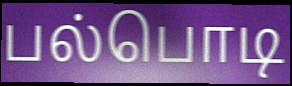
பல்பொடி